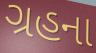
ગ્રહના